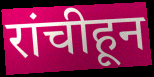
रांचीहून